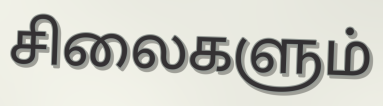
சிலைகளும்